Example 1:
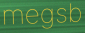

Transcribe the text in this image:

megsb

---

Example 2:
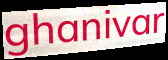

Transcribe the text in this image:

ghanivar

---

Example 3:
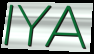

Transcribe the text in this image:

IYA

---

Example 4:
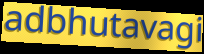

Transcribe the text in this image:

adbhutavagi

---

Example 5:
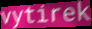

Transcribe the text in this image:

vytirek